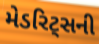
મેડરિટ્સની